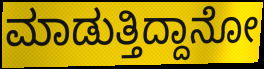
ಮಾಡುತ್ತಿದ್ದಾನೋ